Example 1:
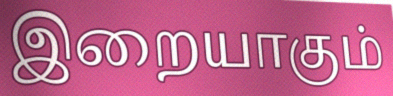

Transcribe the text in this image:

இறையாகும்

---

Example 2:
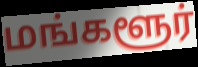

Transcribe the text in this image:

மங்களூர்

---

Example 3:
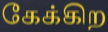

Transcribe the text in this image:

கேக்கிற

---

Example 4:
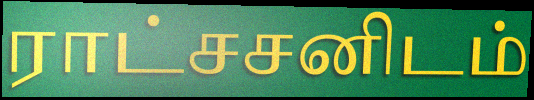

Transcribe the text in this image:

ராட்சசனிடம்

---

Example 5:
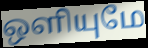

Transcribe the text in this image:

ஒளியுமே